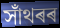
সাঁথৰৰ